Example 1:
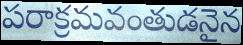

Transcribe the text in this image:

పరాక్రమవంతుడనైన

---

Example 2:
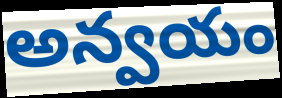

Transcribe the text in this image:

అన్వయం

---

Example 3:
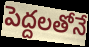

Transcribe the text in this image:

పెద్దలతోనే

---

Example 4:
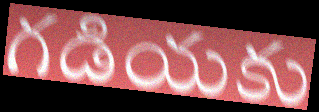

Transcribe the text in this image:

గడియకు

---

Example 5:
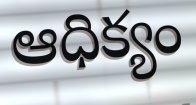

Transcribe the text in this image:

ఆధిక్యం